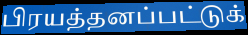
பிரயத்தனப்பட்டுக்